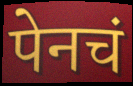
पेनचं